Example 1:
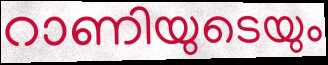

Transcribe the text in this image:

റാണിയുടെയും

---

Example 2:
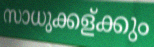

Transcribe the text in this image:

സാധുക്കള്ക്കും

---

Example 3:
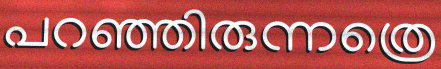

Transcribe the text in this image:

പറഞ്ഞിരുന്നത്രെ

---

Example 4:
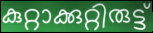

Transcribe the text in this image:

കുറ്റാക്കുറ്റിരുട്ട്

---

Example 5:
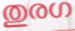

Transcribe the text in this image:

തുരഗ